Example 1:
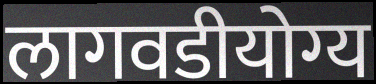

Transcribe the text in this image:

लागवडीयोग्य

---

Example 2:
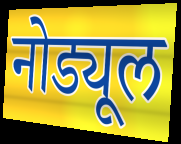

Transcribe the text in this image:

नोड्यूल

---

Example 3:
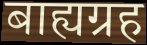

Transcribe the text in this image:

बाह्यग्रह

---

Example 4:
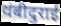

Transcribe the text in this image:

थंबीदुराई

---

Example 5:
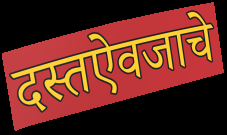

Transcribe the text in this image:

दस्तऐवजाचे